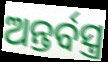
ଅନ୍ତର୍ବସ୍ତ୍ର